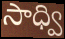
సాధ్వి